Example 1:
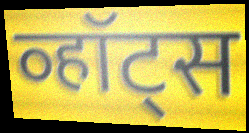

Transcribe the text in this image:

व्हॉट्स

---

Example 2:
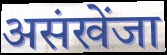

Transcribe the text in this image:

असंखेंजा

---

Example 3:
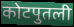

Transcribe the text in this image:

कोटपुतली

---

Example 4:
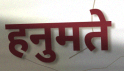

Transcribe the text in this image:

हनुमते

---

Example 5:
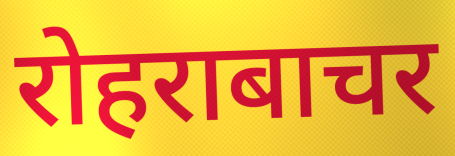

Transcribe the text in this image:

रोहराबाचर